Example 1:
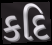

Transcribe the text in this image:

કદિ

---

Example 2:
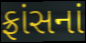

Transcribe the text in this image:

ફ્રાંસનાં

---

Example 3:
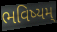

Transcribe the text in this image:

ભવિષ્યમ્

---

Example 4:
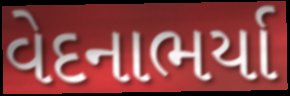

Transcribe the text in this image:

વેદનાભર્યા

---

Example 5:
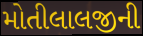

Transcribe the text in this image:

મોતીલાલજીની